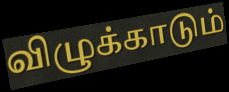
விழுக்காடும்